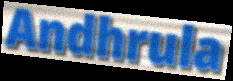
Andhrula